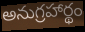
అనుగ్రహార్థం